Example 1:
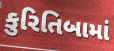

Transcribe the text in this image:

કુરિતિબામાં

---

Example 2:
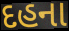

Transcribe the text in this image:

દહના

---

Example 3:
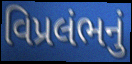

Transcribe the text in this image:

વિપ્રલંભનું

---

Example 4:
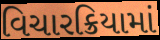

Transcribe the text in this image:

વિચારક્રિયામાં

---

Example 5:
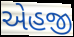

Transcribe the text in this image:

એહજી